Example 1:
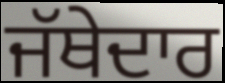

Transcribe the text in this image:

ਜੱਥੇਦਾਰ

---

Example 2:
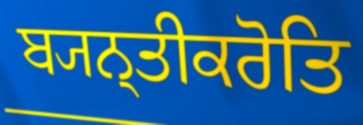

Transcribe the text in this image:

ਬ੍ਯਨ੍ਤੀਕਰੋਤਿ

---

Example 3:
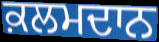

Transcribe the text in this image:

ਕ਼ਲਮਦਾਨ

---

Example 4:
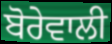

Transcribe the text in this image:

ਬੋਰੇਵਾਲੀ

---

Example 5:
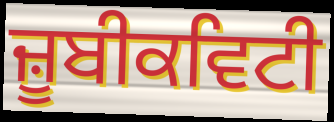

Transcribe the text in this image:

ਜ਼ੂਬੀਕਵਿਟੀ